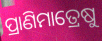
ପ୍ରାଣିମାତ୍ରେଷୁ